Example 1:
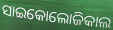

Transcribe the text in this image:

ସାଇକୋଲୋଜିକାଲ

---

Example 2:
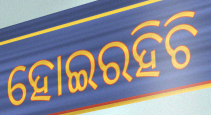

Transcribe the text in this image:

ହୋଇରହିଚି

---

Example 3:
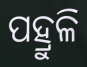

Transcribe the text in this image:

ପହ୍ରୁଳି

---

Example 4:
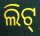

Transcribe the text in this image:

ଲିଟ୍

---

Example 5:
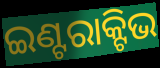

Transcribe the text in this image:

ଇଣ୍ଟରାକ୍ଟିଭ